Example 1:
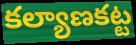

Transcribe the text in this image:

కల్యాణకట్ట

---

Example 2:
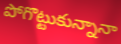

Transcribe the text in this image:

పోగొట్టుకున్నానా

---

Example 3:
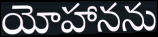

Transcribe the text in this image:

యోహానను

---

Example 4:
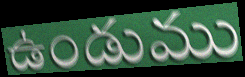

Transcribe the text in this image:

ఉండుము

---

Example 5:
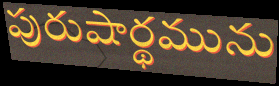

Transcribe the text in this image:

పురుషార్థమును